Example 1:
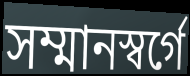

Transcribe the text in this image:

সম্মানস্বর্গে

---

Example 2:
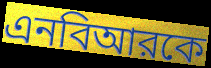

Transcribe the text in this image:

এনবিআরকে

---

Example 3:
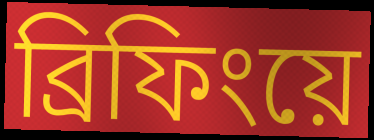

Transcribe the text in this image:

ব্রিফিংয়ে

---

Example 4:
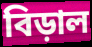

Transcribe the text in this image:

বিড়াল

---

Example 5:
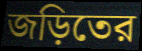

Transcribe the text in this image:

জড়িতের